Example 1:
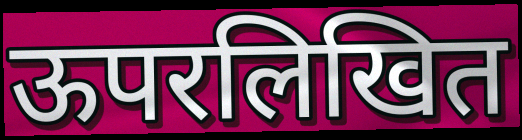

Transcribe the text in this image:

ऊपरलिखित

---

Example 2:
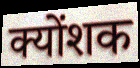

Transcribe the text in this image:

क्योंशक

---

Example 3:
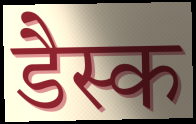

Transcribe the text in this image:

डैस्क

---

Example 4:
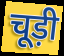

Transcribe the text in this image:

चूड़ी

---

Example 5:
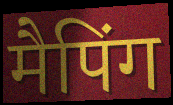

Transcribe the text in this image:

मैपिंग